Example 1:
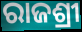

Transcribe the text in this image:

ରାଜଶ୍ରୀ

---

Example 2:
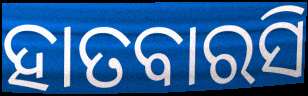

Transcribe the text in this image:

ହାତବାରସି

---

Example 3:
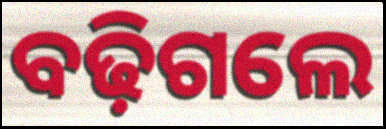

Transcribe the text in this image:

ବଢ଼ିଗଲେ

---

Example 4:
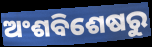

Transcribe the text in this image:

ଅଂଶବିଶେଷରୁ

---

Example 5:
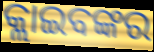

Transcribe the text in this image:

କ୍ଲାଇବଙ୍କର